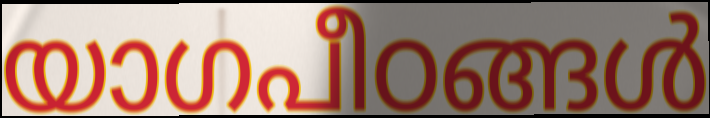
യാഗപീഠങ്ങൾ